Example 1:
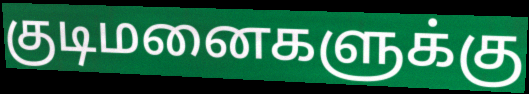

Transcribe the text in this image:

குடிமனைகளுக்கு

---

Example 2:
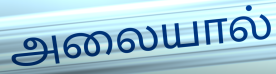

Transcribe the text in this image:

அலையால்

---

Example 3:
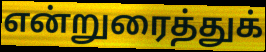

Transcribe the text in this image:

என்றுரைத்துக்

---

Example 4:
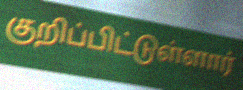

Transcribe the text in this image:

குறிப்பிட்டுள்ளார்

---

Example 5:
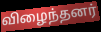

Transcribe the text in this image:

விழைந்தனர்